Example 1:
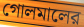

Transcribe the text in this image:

গোলমালের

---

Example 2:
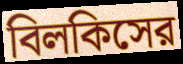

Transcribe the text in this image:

বিলকিসের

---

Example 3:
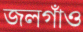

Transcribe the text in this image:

জলগাঁও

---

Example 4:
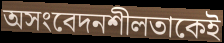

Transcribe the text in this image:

অসংবেদনশীলতাকেই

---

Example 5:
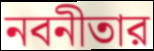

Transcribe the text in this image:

নবনীতার